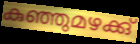
കുഞ്ഞുമഴക്കു്